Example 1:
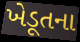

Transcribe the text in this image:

ખેડૂતના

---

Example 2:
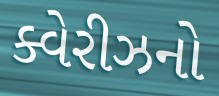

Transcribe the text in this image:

ક્વેરીઝનો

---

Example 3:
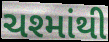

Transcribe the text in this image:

ચશ્માંથી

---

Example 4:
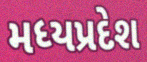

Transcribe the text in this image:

મધ્યપ્રદેશ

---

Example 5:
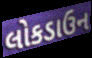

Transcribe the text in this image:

લોકડાઉન